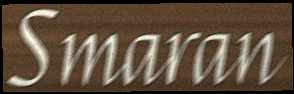
Smaran